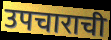
उपचाराची